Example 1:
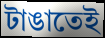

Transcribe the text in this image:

টাঙাতেই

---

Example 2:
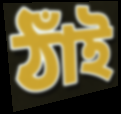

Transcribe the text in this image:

ঠাঁই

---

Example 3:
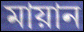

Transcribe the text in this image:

মায়ান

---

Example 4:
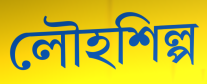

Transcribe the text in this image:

লৌহশিল্প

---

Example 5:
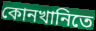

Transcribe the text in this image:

কোনখানিতে